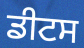
ਡੀਟਸ